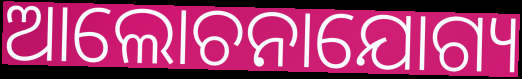
ଆଲୋଚନାଯୋଗ୍ୟ